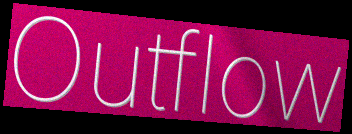
Outflow